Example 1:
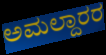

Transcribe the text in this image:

ಅಮಲ್ದಾರರ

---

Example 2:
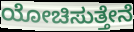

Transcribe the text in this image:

ಯೋಚಿಸುತ್ತೇನೆ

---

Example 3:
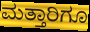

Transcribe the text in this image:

ಮತ್ತಾರಿಗೂ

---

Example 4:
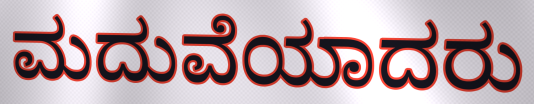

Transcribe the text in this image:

ಮದುವೆಯಾದರು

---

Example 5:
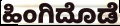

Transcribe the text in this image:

ಹಿಂಗಿದೊಡೆ